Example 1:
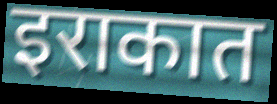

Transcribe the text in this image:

इराकात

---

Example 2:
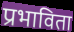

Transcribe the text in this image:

प्रभाविता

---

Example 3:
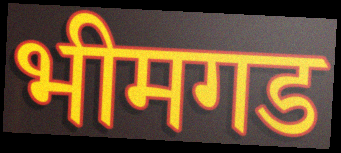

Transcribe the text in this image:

भीमगड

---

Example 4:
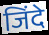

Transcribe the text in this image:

जिंदे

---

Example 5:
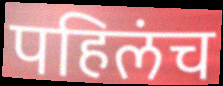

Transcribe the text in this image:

पहिलंच